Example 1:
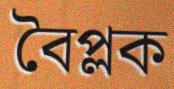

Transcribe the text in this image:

বৈপ্লক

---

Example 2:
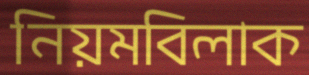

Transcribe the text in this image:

নিয়মবিলাক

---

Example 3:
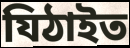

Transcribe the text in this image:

যিঠাইত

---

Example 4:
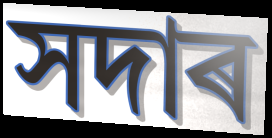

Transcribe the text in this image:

সদাৰ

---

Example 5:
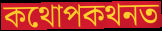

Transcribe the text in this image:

কথোপকথনত